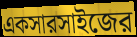
একসারসাইজের